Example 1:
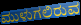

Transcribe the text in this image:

ಮುಳುಗಲಿರುವ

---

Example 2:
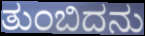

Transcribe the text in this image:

ತುಂಬಿದನು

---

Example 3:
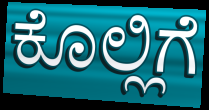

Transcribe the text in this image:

ಕೊಲ್ಲಿಗೆ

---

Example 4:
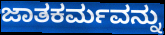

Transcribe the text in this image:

ಜಾತಕರ್ಮವನ್ನು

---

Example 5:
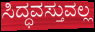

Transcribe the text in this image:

ಸಿದ್ಧವಸ್ತುವಲ್ಲ